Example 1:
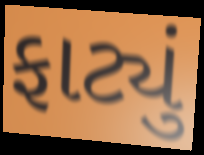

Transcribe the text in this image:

ફાટ્યું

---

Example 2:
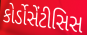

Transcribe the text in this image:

કોર્ડોસેંટીસિસ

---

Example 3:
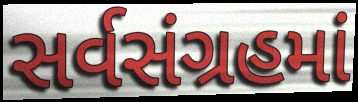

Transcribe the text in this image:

સર્વસંગ્રહમાં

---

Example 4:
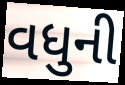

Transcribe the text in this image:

વધુની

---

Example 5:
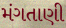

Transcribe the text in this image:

મંગતાણી